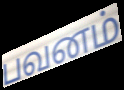
பவனம்